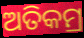
ଅତିକମ୍ର